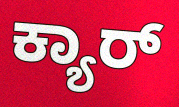
ಕ್ಯಾರ್